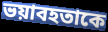
ভয়াবহতাকে